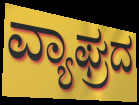
ವ್ಯಾಘ್ರದ